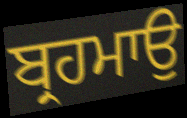
ਬ੍ਰਹਮਾਉ